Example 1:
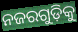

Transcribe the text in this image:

ନଜରଗୁଡ଼ିକୁ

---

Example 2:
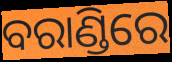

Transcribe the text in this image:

ବରାଣ୍ଡିରେ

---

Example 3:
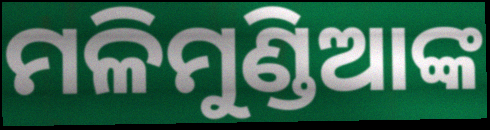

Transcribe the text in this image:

ମଳିମୁଣ୍ଡିଆଙ୍କ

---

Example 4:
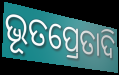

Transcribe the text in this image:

ଭୂତପ୍ରେତାଦି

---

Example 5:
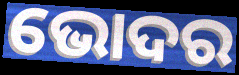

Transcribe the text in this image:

ଭୋଦର